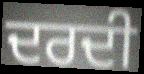
ਦਰਦੀ